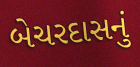
બેચરદાસનું